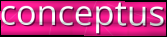
conceptus